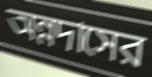
অন্নদাসের